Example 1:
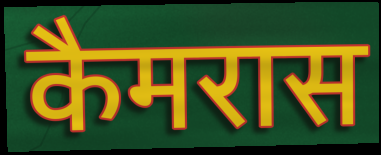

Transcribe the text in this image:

कैमरास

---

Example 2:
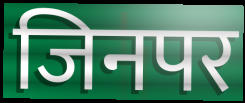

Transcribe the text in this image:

जिनपर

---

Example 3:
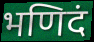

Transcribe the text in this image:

भणिदं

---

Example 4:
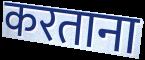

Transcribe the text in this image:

करताना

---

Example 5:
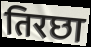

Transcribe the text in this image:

तिरछा